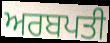
ਅਰਬਪਤੀ